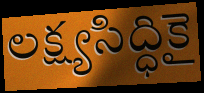
లక్ష్యసిద్ధికై